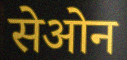
सेओन